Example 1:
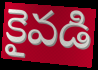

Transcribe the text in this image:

కైవడి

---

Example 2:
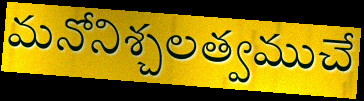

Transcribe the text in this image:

మనోనిశ్చలత్వముచే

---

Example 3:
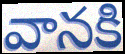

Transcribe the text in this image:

వానకి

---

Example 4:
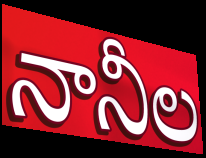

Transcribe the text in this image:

నానీల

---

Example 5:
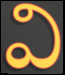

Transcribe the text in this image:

వి